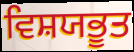
ਵਿਸ਼ਯਭੂਤ